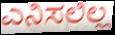
ಎನಿಸಲಿಲ್ಲ